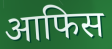
आफिस